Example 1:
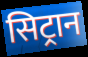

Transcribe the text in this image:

सिट्रान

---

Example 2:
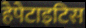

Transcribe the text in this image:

हेपेटाइटिस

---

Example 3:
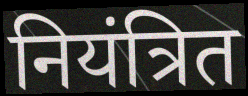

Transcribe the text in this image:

नियंत्रित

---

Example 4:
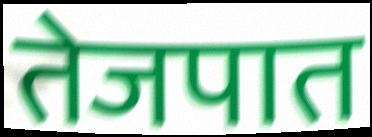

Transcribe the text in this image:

तेजपात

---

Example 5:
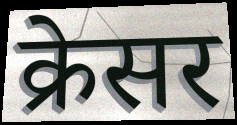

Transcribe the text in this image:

क्रेसर